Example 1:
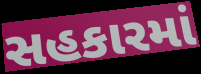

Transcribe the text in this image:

સહકારમાં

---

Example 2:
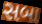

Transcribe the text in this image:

સબા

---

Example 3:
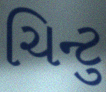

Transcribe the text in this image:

ચિન્ટુ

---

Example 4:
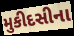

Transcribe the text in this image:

મુકીદસીના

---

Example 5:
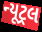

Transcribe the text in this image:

ન્યૂટ્રલ